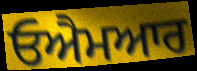
ਓਐਮਆਰ